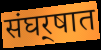
संघर्षात